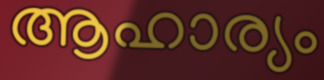
ആഹാര്യം